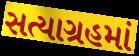
સત્યાગ્રહમાં